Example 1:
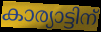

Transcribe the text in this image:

കാര്യാട്ടിന്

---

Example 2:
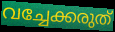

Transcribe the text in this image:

വച്ചേക്കരുത്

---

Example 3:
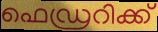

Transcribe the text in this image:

ഫെഡ്രറിക്ക്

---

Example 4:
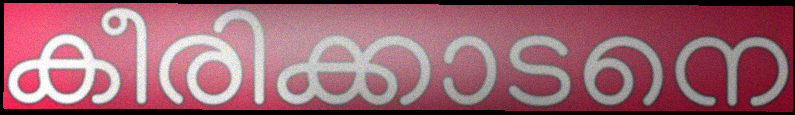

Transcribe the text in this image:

കീരിക്കാടനെ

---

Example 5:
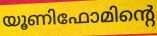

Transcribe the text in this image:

യൂണിഫോമിന്റെ